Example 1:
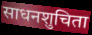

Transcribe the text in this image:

साधनशुचिता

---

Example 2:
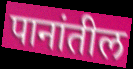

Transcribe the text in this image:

पानांतील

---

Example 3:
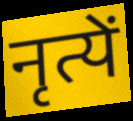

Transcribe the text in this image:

नृत्यें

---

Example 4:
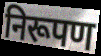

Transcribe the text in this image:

निरूपण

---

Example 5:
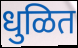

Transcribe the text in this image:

धुळित